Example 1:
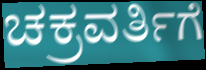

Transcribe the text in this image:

ಚಕ್ರವರ್ತಿಗೆ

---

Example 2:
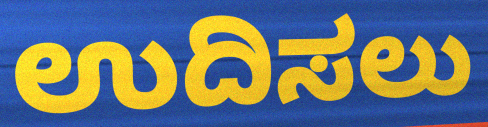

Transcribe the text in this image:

ಉದಿಸಲು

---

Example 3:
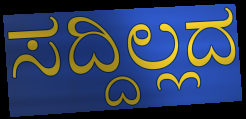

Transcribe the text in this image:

ಸದ್ದಿಲ್ಲದ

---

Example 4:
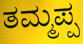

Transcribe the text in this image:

ತಮ್ಮಪ್ಪ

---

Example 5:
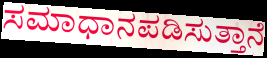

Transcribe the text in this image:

ಸಮಾಧಾನಪಡಿಸುತ್ತಾನೆ